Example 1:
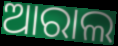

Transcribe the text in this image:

ଆରାଲ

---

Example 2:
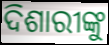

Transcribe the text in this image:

ଦିଶାରୀଙ୍କୁ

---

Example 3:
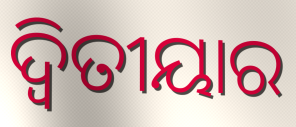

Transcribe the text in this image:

ଦ୍ଵିତୀୟାର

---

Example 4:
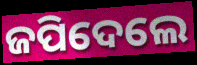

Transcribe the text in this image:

ଜପିଦେଲେ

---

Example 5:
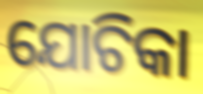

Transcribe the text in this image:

ଯୋଚିକା